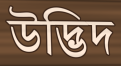
উদ্ভিদ